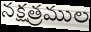
నక్షత్రముల